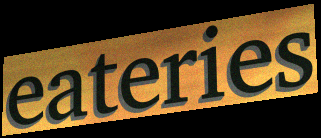
eateries